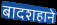
बादशहाने